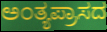
ಅಂತ್ಯಪ್ರಾಸದ